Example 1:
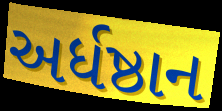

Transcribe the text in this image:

અર્ધષ્ઠાન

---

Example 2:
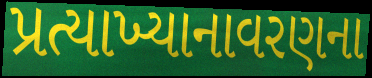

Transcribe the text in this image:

પ્રત્યાખ્યાનાવરણના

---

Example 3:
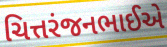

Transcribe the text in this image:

ચિત્તરંજનભાઈએ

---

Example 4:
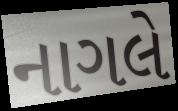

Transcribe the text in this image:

નાગલે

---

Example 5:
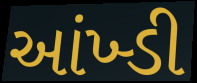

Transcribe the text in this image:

આંખ્ડી